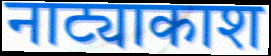
नाट्याकाश